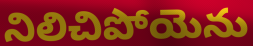
నిలిచిపోయెను